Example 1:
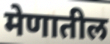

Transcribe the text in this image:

मेणातील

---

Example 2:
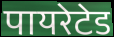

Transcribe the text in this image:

पायरेटेड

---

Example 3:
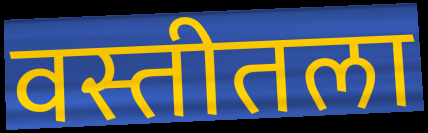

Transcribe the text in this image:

वस्तीतला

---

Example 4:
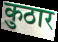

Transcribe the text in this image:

कुठार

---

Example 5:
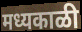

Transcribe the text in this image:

मध्यकाळी